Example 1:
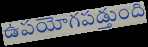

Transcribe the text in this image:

ఉపయోగపడ్తుంది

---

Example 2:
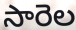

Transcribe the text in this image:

సారెల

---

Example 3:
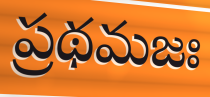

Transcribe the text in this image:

ప్రథమజః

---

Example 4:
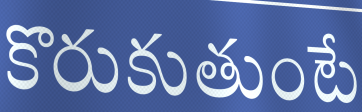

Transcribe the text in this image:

కొరుకుతుంటే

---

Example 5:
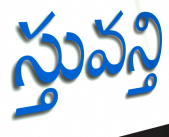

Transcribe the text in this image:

స్తువన్తి